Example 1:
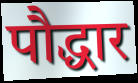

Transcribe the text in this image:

पौद्धार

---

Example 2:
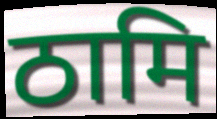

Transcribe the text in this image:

ठामि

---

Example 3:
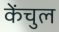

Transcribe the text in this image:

केंचुल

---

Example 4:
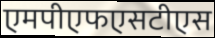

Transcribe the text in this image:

एमपीएफएसटीएस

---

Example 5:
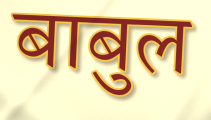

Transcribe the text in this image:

बाबुल